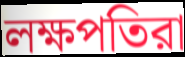
লক্ষপতিরা